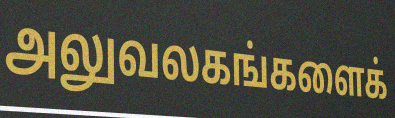
அலுவலகங்களைக்